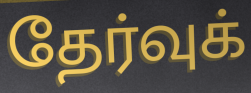
தேர்வுக்